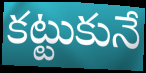
కట్టుకునే